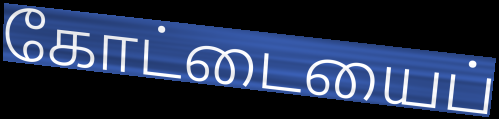
கோட்டையைப்